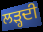
ਲੜ੍ਹਦੀ